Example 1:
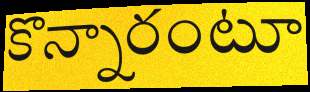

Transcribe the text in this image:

కొన్నారంటూ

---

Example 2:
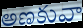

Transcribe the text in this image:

అణకువా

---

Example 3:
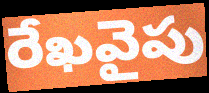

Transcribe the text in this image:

రేఖవైపు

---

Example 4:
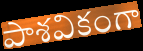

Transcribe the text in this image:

పాశవికంగా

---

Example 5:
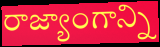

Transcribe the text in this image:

రాజ్యాంగాన్ని